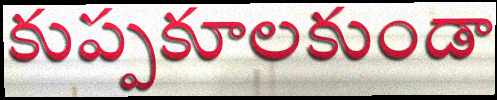
కుప్పకూలకుండా